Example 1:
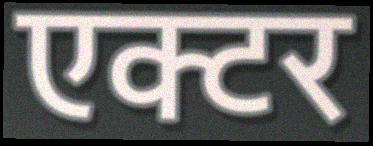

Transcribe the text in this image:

एक्टर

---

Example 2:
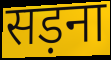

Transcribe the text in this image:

सड़ना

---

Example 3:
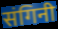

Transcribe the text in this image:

संगिनी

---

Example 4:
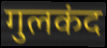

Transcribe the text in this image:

गुलकंद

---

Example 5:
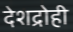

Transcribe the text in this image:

देशद्रोही